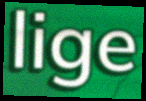
lige